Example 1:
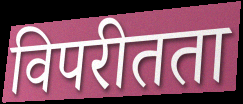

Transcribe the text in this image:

विपरीतता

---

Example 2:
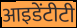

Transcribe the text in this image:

आइडेंटीटी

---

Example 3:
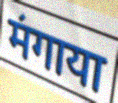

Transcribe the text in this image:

मंगाया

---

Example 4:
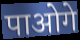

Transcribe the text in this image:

पाओगे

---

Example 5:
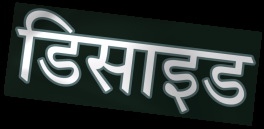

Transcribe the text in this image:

डिसाइड